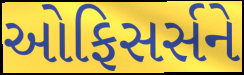
ઓફિસર્સને